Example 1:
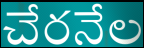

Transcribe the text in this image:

చేరనేల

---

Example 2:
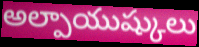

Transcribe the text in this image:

అల్పాయుష్కులు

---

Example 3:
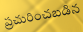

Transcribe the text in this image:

ప్రచురించబడిన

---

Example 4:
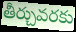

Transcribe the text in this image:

తీర్చువరకు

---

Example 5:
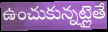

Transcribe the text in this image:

ఉంచుకున్నట్లైతే